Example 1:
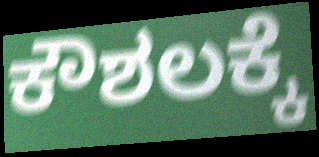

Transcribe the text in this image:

ಕೌಶಲಕ್ಕೆ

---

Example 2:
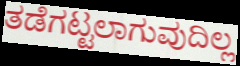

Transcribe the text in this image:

ತಡೆಗಟ್ಟಲಾಗುವುದಿಲ್ಲ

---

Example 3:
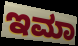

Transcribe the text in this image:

ಇಮಾ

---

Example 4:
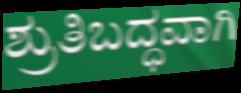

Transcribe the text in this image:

ಶ್ರುತಿಬದ್ಧವಾಗಿ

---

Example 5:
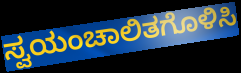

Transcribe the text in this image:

ಸ್ವಯಂಚಾಲಿತಗೊಳಿಸಿ